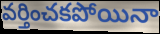
వర్తించకపోయినా